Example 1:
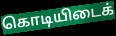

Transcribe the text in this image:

கொடியிடைக்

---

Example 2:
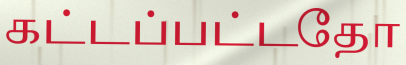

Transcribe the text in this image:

கட்டப்பட்டதோ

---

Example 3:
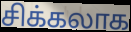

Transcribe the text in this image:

சிக்கலாக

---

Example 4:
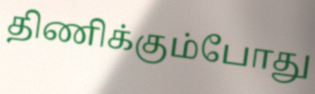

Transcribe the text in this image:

திணிக்கும்போது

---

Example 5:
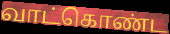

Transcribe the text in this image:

வாட்கொண்ட